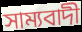
সাম্যবাদী